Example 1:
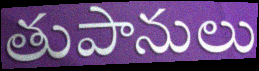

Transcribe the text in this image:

తుపానులు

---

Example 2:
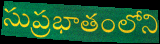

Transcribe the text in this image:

సుప్రభాతంలోని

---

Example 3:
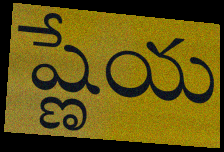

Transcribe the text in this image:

ష్ణేయ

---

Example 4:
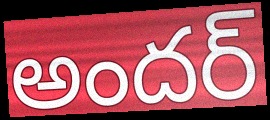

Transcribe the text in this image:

అందర్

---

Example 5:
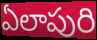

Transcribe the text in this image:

ఏలాపురి